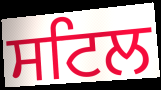
ਸਟਿਲ